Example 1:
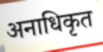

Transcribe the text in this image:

अनाधिकृत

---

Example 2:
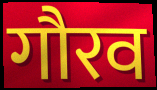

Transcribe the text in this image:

गौरव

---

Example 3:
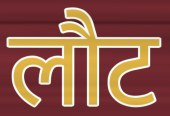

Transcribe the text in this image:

लौट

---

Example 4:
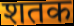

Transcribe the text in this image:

शतक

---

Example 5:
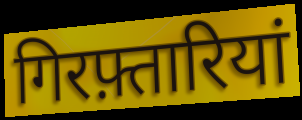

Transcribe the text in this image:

गिरफ़्तारियां